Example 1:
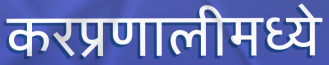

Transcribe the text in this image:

करप्रणालीमध्ये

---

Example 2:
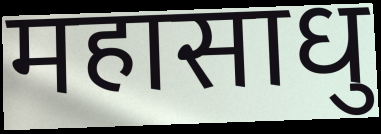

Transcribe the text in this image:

महासाधु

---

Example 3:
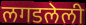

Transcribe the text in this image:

लगडलेली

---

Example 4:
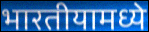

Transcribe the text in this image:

भारतीयामध्ये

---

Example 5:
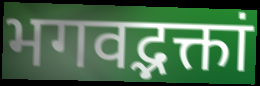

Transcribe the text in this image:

भगवद्भक्तां